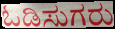
ಓಡಿಸುಗರು